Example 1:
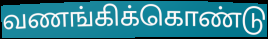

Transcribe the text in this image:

வணங்கிக்கொண்டு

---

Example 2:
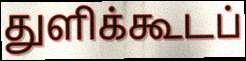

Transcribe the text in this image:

துளிக்கூடப்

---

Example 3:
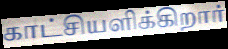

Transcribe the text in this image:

காட்சியளிக்கிறார்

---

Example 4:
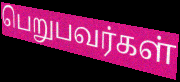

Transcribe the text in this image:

பெறுபவர்கள்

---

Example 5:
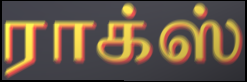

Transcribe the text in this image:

ராக்ஸ்